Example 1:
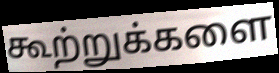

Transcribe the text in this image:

கூற்றுக்களை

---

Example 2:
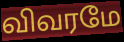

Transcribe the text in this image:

விவரமே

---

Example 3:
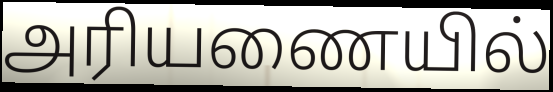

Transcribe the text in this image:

அரியணையில்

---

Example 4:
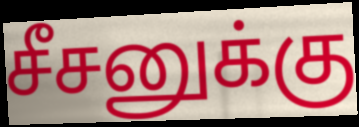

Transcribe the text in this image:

சீசனுக்கு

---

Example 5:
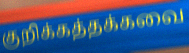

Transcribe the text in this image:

குறிக்கத்தக்கவை